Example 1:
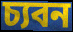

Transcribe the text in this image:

চ্যবন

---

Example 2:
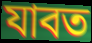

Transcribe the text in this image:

যাবত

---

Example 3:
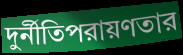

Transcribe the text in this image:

দুর্নীতিপরায়ণতার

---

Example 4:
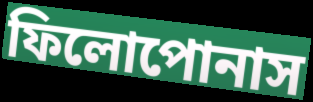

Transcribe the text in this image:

ফিলোপোনাস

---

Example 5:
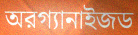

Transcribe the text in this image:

অরগ্যানাইজড